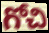
గోచి